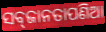
ସବ୍‌ଜାନତାପଣିଆ